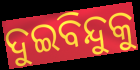
ଦୁଇବିନ୍ଦୁକୁ